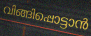
വിങ്ങിപ്പൊട്ടാൻ